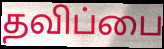
தவிப்பை